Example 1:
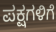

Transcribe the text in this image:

ಪಕ್ಷಗಳಿಗೆ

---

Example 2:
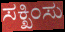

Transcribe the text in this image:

ಸಕ್ಖಿಂಸು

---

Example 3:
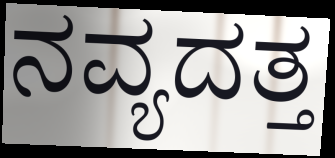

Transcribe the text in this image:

ನವ್ಯದತ್ತ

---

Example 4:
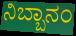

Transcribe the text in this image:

ನಿಬ್ಬಾನಂ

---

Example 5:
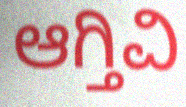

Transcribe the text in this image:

ಆಗ್ತಿವಿ